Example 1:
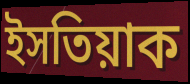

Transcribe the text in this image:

ইসতিয়াক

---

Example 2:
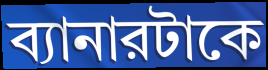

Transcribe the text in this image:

ব্যানারটাকে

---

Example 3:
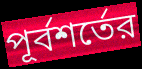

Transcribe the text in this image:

পূর্বশর্তের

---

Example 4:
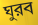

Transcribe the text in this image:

ঘুরব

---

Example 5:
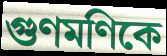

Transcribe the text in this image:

গুণমণিকে